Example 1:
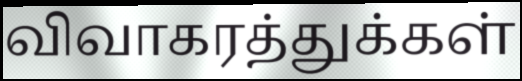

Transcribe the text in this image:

விவாகரத்துக்கள்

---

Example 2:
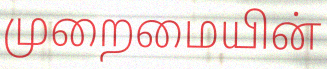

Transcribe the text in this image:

முறைமையின்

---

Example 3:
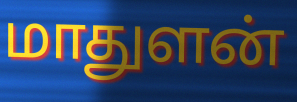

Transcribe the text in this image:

மாதுளன்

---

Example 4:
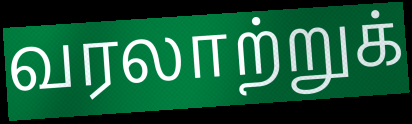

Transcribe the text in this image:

வரலாற்றுக்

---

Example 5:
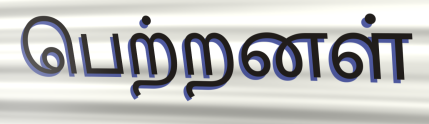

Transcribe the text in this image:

பெற்றனள்